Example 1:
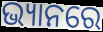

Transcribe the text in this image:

ଭ୍ୟାନରେ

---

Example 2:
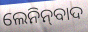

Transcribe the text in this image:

ଲେନିନ୍‌ବାଦ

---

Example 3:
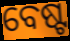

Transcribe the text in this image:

ବେଷ୍ଟ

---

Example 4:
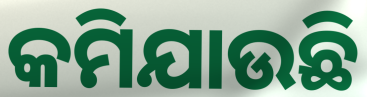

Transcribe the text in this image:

କମିଯାଉଛି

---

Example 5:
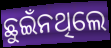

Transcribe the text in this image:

ଛୁଇଁନଥିଲେ